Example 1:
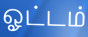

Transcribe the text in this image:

ஓட்டம்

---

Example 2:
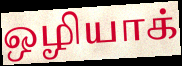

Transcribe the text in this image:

ஒழியாக்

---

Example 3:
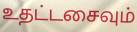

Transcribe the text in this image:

உதட்டசைவும்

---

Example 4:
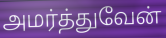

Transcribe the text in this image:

அமர்த்துவேன்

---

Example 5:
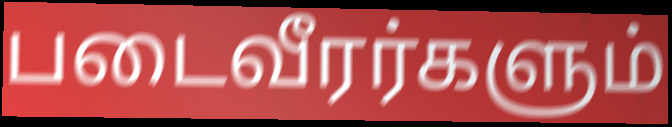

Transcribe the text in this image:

படைவீரர்களும்